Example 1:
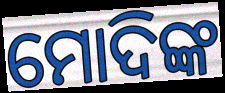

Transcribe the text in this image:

ମୋଦିଙ୍କ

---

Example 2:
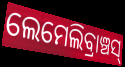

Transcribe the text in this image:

ଲେମେଲିବ୍ରାଞ୍ଚସ୍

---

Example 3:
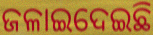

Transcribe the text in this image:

ଜଳାଇଦେଇଛି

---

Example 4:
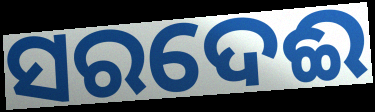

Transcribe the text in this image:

ସରଦେଈ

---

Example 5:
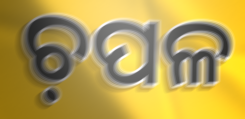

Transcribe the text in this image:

ଚ଼ପଳ